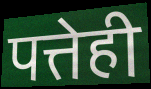
पत्तेही